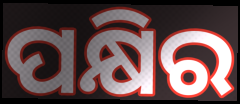
ପକ୍ଷିର